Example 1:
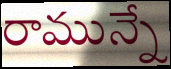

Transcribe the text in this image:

రామున్నే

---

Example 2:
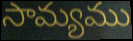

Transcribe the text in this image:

సామ్యము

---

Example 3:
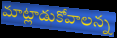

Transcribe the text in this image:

మాట్లాడుకోవాలన్న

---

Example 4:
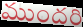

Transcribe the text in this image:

ముందరి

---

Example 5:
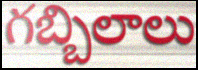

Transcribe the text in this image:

గబ్బిలాలు